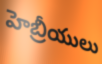
హెబ్రీయులు